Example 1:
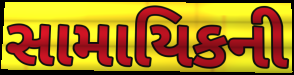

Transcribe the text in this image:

સામાયિકની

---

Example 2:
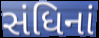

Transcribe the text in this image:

સંધિનાં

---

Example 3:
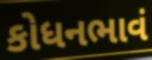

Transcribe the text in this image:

કોધનભાવં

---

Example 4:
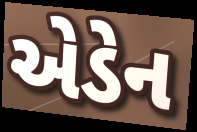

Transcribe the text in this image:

એડેન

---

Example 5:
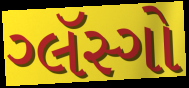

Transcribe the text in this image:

ગ્લૅસ્ગો